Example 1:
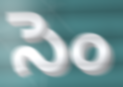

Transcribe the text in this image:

సెం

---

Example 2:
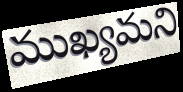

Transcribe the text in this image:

ముఖ్యమని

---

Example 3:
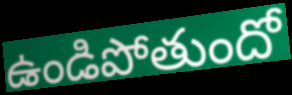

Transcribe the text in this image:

ఉండిపోతుందో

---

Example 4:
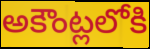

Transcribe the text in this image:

అకౌంట్లలోకి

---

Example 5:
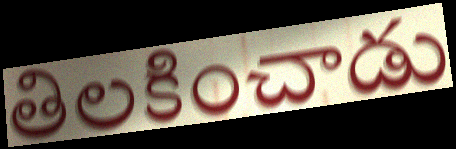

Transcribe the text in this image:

తిలకించాడు